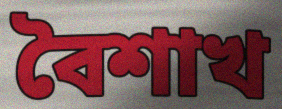
বৈশাখ